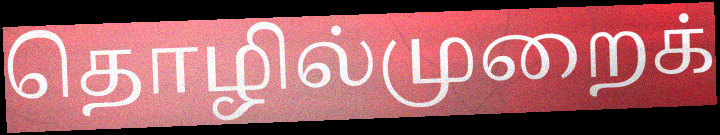
தொழில்முறைக்